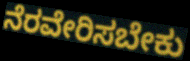
ನೆರವೇರಿಸಬೇಕು